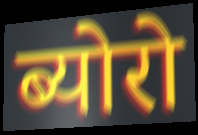
ब्योरो